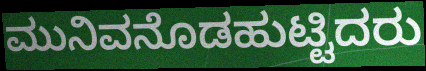
ಮುನಿವನೊಡಹುಟ್ಟಿದರು